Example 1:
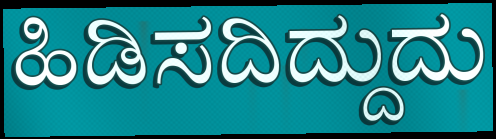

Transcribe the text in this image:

ಹಿಡಿಸದಿದ್ದುದು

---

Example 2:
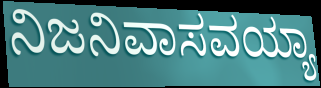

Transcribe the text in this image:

ನಿಜನಿವಾಸವಯ್ಯಾ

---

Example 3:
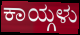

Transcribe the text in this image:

ಕಾಯ್ಗಳು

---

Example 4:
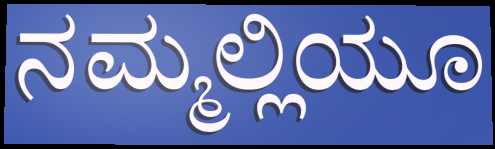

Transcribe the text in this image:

ನಮ್ಮಲ್ಲಿಯೂ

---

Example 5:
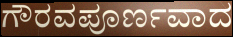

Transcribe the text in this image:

ಗೌರವಪೂರ್ಣವಾದ